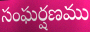
సంఘర్షణము